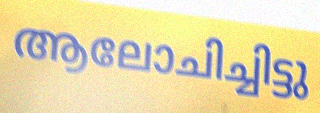
ആലോചിച്ചിട്ടു